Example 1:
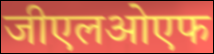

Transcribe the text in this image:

जीएलओएफ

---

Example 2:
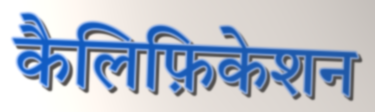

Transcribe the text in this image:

कैलिफ़िकेशन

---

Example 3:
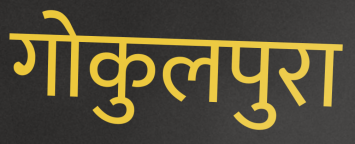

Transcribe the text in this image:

गोकुलपुरा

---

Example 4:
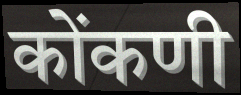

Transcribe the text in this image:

कोंकणी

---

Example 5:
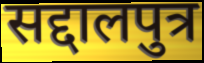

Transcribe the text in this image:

सद्दालपुत्र